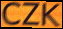
CZK